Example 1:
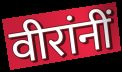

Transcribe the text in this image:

वीरांनीं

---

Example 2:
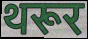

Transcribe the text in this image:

थरूर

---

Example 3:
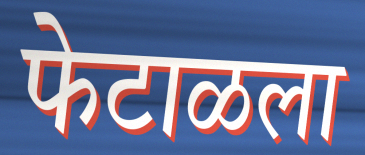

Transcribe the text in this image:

फेटाळला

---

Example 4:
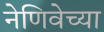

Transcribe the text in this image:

नेणिवेच्या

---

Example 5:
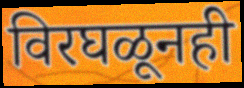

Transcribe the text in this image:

विरघळूनही